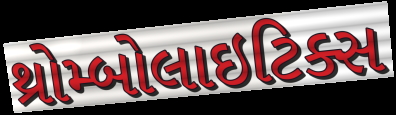
થ્રોમ્બોલાઇટિક્સ